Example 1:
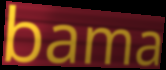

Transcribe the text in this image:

bama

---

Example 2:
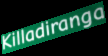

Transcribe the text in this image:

Killadiranga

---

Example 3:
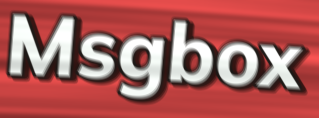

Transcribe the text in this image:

Msgbox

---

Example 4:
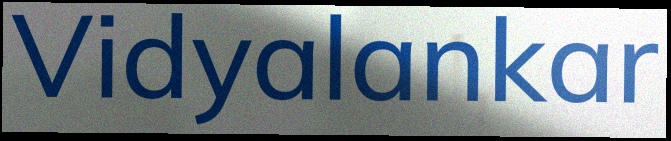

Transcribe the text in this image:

Vidyalankar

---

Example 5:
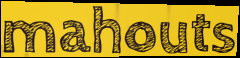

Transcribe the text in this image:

mahouts